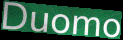
Duomo